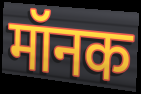
मॉनक